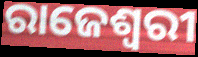
ରାଜେଶ୍ଵରୀ